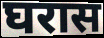
घरास